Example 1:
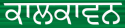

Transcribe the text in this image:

ਕਾਲਕਾਵਨ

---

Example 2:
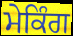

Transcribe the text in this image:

ਮੇਕਿੰਗ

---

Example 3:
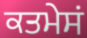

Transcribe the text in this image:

ਕਤਮੇਸਂ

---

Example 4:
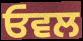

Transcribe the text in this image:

ਓਵਲ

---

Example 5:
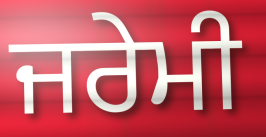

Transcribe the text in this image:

ਜਰੇਮੀ